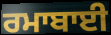
ਰਮਾਬਾਈ